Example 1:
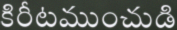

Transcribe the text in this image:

కిరీటముంచుడి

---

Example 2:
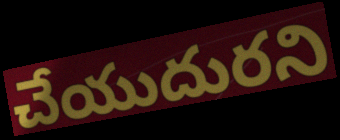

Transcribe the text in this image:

చేయుదురని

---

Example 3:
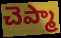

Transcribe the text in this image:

చెప్మా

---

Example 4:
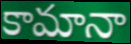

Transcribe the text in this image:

కామానా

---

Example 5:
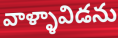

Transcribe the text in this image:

వాళ్ళావిడను